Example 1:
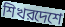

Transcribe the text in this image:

শিখরদেশে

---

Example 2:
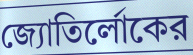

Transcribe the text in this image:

জ্যোতির্লোকের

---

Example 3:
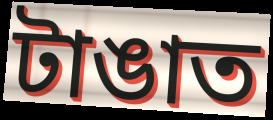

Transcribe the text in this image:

টাঙাত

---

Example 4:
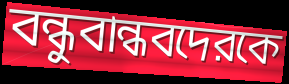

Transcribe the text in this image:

বন্ধুবান্ধবদেরকে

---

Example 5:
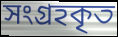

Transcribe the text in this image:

সংগ্রহকৃত